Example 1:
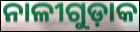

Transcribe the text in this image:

ନାଳୀଗୁଡ଼ାକ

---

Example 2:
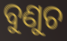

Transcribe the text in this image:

ବୁଣୁଚ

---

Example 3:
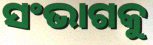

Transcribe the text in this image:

ସଂଭାଗକୁ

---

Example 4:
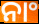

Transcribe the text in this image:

ନାଂ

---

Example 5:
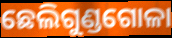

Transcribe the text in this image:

ଛେଲିଗୁଣ୍ଡଗୋଳା